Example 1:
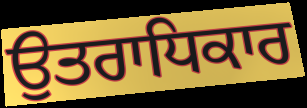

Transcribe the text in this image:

ਉਤਰਾਧਿਕਾਰ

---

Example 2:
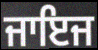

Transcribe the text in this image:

ਜਾਇਜ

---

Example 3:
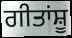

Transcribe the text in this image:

ਗੀਤਾਂਸ਼ੂ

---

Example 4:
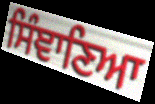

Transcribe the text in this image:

ਸਿੰਞਾਣਿਆ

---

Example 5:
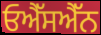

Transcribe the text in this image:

ਓਐੱਸਐੱਨ